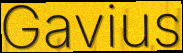
Gavius